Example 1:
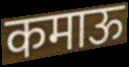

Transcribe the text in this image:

कमाऊ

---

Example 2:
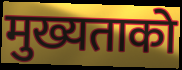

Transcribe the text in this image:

मुख्यताको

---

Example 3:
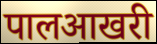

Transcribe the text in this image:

पालआखरी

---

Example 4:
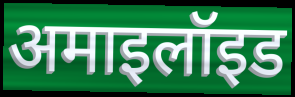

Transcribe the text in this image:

अमाइलॉइड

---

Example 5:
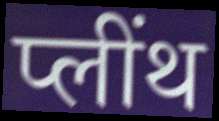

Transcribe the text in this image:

प्लींथ